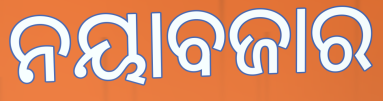
ନୟାବଜାର